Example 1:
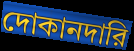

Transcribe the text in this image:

দোকানদারি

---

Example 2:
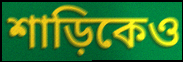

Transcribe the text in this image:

শাড়িকেও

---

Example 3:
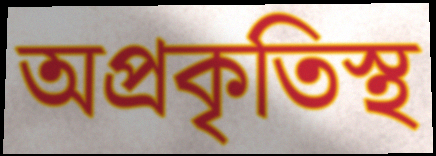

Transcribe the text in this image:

অপ্রকৃতিস্থ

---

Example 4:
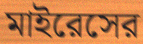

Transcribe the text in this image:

মাইরেসের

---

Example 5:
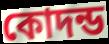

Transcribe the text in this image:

কোদন্ড